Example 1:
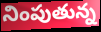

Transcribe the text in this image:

నింపుతున్న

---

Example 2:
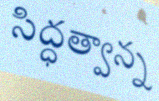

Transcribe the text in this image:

సిద్ధత్వాన్న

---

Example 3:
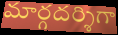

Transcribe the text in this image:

మార్గదర్శిగా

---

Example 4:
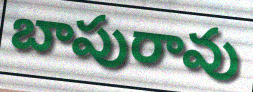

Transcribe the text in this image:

బాపురావు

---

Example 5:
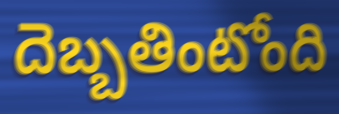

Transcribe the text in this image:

దెబ్బతింటోంది